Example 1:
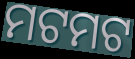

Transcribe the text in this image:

ମଟମଟ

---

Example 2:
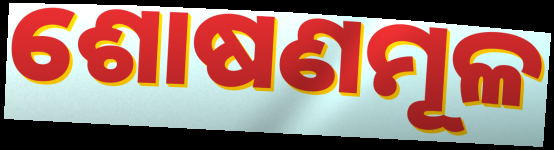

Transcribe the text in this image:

ଶୋଷଣମୂଳ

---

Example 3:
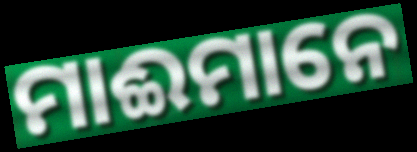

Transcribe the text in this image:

ମାଈମାନେ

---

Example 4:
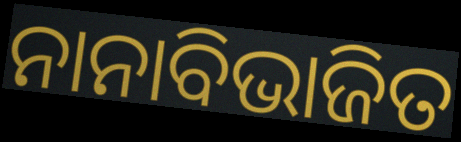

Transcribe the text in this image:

ନାନାବିଭାଜିତ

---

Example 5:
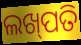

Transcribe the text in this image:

ଲଖ୍‌ପତି